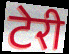
टेरी